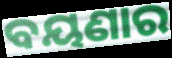
ବୟଣାର